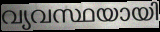
വ്യവസ്ഥയായി